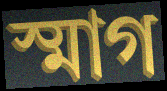
স্মাগ